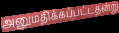
அனுமதிக்கப்பட்டதன்று